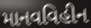
માનવવિહીન